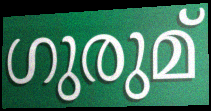
ഗുരുമ്